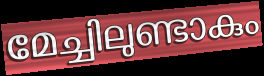
മേച്ചിലുണ്ടാകും